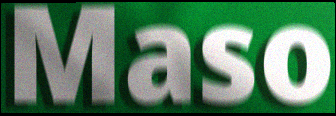
Maso